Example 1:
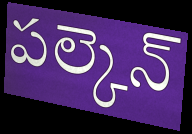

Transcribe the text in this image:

పల్కెన్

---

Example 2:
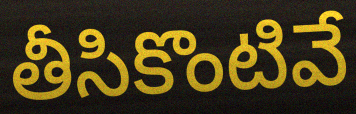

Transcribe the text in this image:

తీసికొంటివే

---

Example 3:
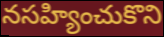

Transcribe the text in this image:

నసహ్యించుకొని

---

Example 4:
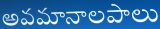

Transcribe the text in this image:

అవమానాలపాలు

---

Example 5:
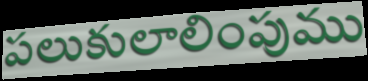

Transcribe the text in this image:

పలుకులాలింపుము